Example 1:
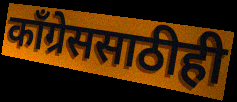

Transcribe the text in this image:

काँग्रेससाठीही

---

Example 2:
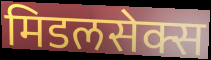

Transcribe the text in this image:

मिडलसेक्स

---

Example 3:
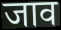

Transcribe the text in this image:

जाव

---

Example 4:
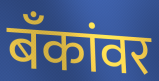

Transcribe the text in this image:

बँकांवर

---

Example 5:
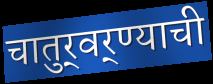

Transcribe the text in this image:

चातुर्वर्ण्याची